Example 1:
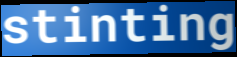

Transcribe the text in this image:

stinting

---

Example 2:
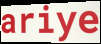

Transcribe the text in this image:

ariye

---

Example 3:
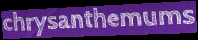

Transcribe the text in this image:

chrysanthemums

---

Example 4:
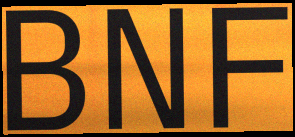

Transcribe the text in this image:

BNF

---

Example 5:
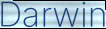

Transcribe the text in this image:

Darwin